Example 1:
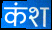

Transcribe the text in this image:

कंश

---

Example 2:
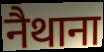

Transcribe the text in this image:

नैथाना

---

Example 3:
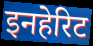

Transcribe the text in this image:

इनहेरिट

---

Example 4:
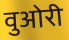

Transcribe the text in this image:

वुओरी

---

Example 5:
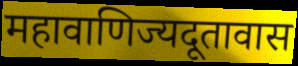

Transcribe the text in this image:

महावाणिज्यदूतावास